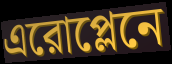
এরোপ্লেনে